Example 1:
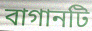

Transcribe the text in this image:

বাগানটি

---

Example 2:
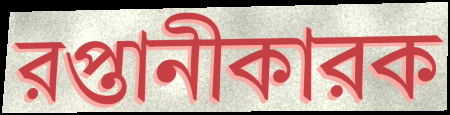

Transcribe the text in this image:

রপ্তানীকারক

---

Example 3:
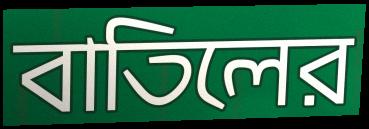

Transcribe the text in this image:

বাতিলের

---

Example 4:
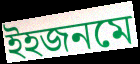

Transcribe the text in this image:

ইহজনমে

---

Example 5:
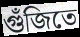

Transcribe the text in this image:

গুঁজিতে